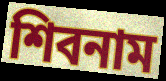
শিবনাম